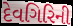
દેવગિરિની